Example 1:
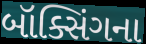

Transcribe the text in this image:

બૉક્સિંગના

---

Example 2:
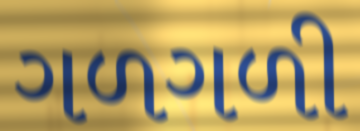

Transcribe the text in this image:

ગળગળી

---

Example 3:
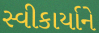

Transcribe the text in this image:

સ્વીકાર્યાને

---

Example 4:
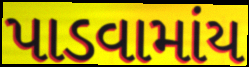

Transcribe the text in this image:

પાડવામાંય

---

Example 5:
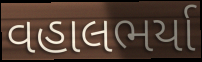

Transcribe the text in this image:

વહાલભર્યા